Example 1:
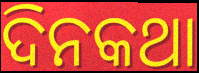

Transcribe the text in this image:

ଦିନକଥା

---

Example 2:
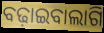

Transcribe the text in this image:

ବଢ଼ାଇବାଲାଗି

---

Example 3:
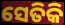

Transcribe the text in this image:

ସେତିକି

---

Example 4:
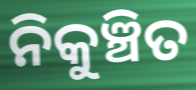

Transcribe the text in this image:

ନିକୁଞ୍ଚିତ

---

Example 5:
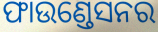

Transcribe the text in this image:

ଫାଉଣ୍ଡେସନର